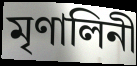
মৃণালিনী